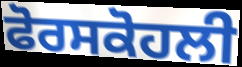
ਫੋਰਸਕੋਹਲੀ